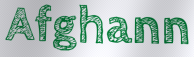
Afghann